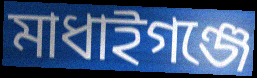
মাধাইগঞ্জে